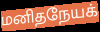
மனிதநேயக்